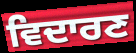
ਵਿਦਾਰਣ